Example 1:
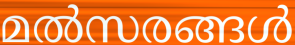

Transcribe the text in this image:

മൽസരങ്ങൾ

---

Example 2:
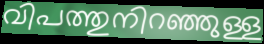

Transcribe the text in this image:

വിപത്തുനിറഞ്ഞുള്ള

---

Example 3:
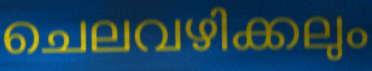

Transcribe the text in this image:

ചെലവഴിക്കലും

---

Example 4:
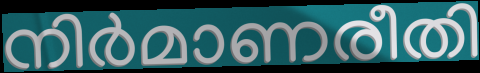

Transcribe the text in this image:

നിർമാണരീതി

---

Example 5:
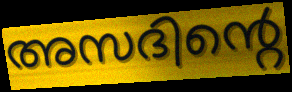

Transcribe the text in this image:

അസദിന്റെ